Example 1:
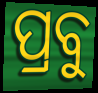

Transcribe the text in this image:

ପ୍ରବୁ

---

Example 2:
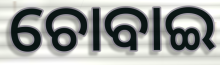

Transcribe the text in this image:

ଚୋବାଇ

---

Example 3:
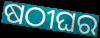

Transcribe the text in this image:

ଷଠୀଘର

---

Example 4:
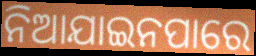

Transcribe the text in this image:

ନିଆଯାଇନପାରେ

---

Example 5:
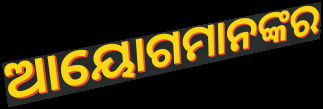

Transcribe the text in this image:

ଆୟୋଗମାନଙ୍କର